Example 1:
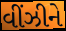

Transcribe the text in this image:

વીંઝીને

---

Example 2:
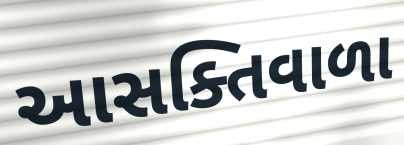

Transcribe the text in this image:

આસક્તિવાળા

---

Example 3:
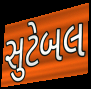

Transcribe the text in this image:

સુટેબલ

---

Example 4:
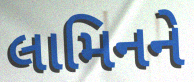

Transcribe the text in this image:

લામિનને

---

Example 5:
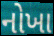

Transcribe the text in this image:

નોખા